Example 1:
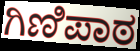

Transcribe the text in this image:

ಗಿಣಿಪಾಠ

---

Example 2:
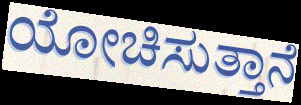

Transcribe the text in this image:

ಯೋಚಿಸುತ್ತಾನೆ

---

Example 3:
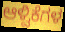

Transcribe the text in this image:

ಆಳ್ವಿಕೆಗಳ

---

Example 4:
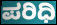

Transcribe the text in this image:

ಪರಿಧಿ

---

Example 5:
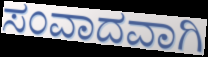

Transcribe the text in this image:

ಸಂವಾದವಾಗಿ